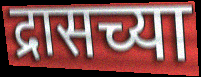
द्रासच्या